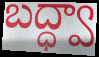
బద్ధ్వా